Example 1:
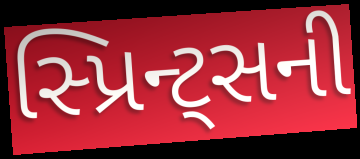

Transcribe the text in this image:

સ્પ્રિન્ટ્સની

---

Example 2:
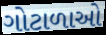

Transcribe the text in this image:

ગોટાળાઓ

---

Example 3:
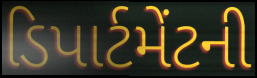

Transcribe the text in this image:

ડિપાર્ટમેંટની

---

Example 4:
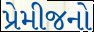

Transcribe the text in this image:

પ્રેમીજનો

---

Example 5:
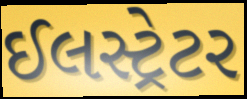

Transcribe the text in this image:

ઈલસ્ટ્રેટર